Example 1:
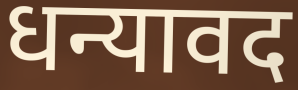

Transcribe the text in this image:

धन्यावद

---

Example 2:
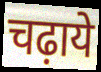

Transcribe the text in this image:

चढ़ाये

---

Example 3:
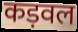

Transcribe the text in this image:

कड़वल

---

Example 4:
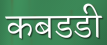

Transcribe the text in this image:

कबडडी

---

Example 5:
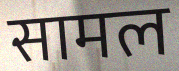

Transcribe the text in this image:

सामल